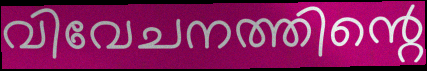
വിവേചനത്തിന്റെ